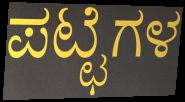
ಪಟ್ಟೆಗಳ